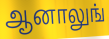
ஆனாலுங்